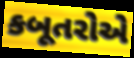
કબૂતરોએ